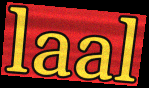
laal